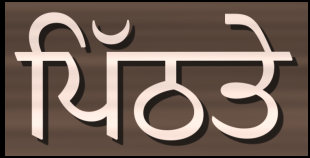
ਪਿੱਠਤੇ